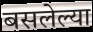
बसलेल्या